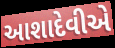
આશાદેવીએ